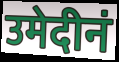
उमेदीनं